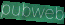
pubweb